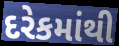
દરેકમાંથી